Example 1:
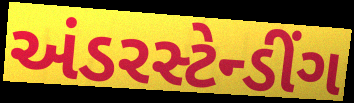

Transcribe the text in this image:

અંડરસ્ટેન્ડીંગ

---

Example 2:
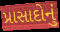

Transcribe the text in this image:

પ્રાસાદોનું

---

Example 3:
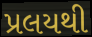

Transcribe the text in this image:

પ્રલયથી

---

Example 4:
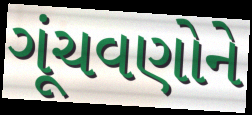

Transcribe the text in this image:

ગૂંચવણોને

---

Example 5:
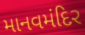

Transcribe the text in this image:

માનવમંદિર